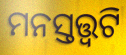
ମନସ୍ତତ୍ତ୍ୱଟି